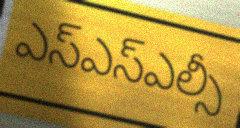
ఎస్ఎస్ఎల్సీ